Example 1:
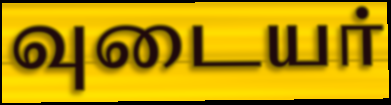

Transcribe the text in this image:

வுடையர்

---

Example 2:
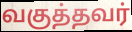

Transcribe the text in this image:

வகுத்தவர்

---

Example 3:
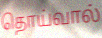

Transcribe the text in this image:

தொய்வால்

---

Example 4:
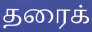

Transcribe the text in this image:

தரைக்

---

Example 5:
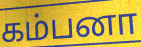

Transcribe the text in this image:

கம்பனா